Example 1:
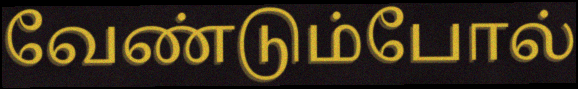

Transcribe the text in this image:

வேண்டும்போல்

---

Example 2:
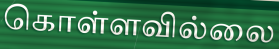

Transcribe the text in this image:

கொள்ளவில்லை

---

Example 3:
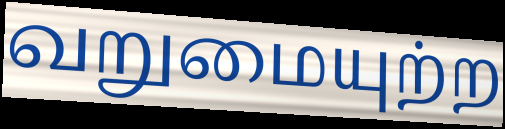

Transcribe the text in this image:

வறுமையுற்ற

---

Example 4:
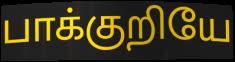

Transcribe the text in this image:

பாக்குறியே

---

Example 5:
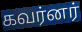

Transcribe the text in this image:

கவர்னர்